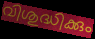
വിശുദ്ധിക്കും